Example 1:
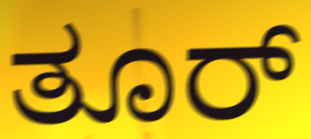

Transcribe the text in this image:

ತೂರ್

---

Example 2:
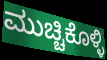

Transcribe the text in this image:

ಮುಚ್ಚಿಕೊಳ್ಳಿ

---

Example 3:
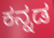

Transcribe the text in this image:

ಕನ್ನಡ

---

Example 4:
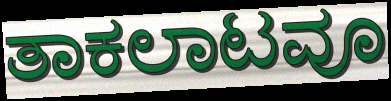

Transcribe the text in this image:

ತಾಕಲಾಟವೂ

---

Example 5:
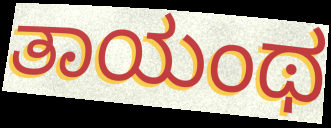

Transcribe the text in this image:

ತಾಯಂಥ